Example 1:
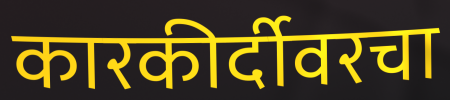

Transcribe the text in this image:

कारकीर्दीवरचा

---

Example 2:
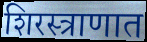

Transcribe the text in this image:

शिरस्त्राणात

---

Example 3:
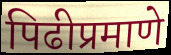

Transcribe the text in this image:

पिढीप्रमाणे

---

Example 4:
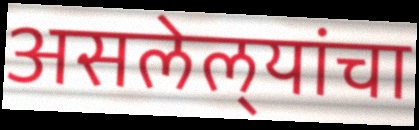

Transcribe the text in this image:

असलेल्यांचा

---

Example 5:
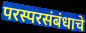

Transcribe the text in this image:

परस्परसंबंधाचे